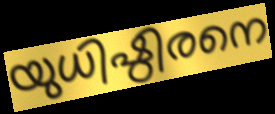
യുധിഷ്ഠിരനെ